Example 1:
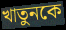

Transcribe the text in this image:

খাতুনকে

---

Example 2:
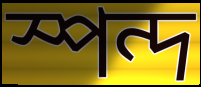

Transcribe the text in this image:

স্পন্দ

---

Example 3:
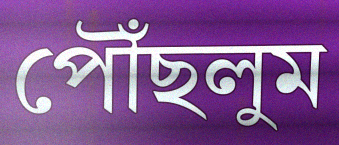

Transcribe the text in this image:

পৌঁছলুম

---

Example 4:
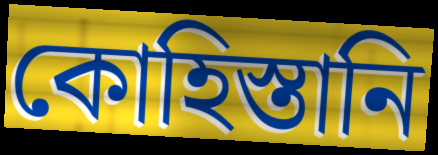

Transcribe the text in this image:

কোহিস্তানি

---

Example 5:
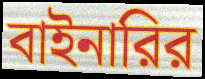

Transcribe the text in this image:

বাইনারির